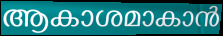
ആകാശമാകാൻ